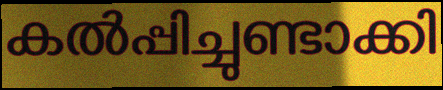
കൽപ്പിച്ചുണ്ടാക്കി